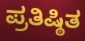
ಪ್ರತಿಷ್ಠಿತ